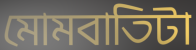
মোমবাতিটা